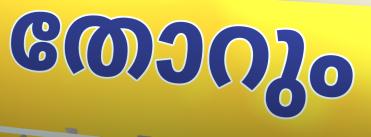
തോറും